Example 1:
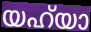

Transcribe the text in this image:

യഹ്‌യാ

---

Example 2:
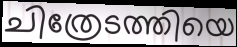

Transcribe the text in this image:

ചിത്രേടത്തിയെ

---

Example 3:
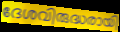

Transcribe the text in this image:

ദേശവിരുദ്ധരായി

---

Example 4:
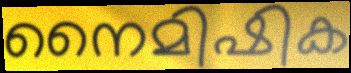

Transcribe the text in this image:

നൈമിഷിക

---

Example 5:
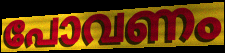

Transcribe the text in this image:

പോവണം